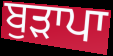
ਬੁੜਾਪਾ